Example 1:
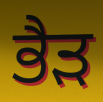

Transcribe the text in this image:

ਭੈੜ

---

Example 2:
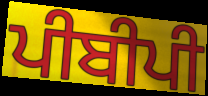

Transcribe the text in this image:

ਪੀਬੀਪੀ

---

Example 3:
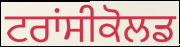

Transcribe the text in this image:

ਟਰਾਂਸੀਕੋਲਡ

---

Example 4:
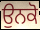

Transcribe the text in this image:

ਉਨਕੋ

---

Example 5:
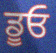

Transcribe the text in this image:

ਡੂਓ